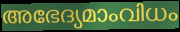
അഭേദ്യമാംവിധം